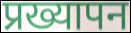
प्रख्यापन